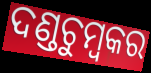
ଦଣ୍ଡଚୁମ୍ବକର